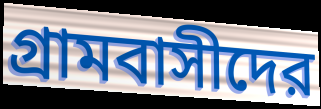
গ্রামবাসীদের